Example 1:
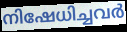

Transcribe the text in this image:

നിഷേധിച്ചവർ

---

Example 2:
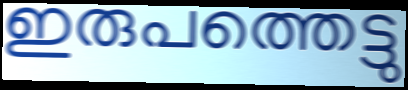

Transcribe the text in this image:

ഇരുപത്തെട്ടു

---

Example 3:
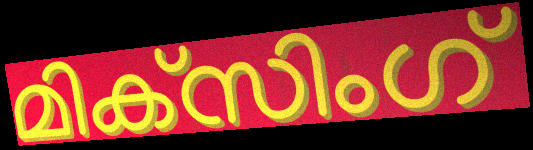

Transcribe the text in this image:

മിക്‌സിംഗ്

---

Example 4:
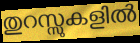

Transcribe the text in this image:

തുറസ്സുകളിൽ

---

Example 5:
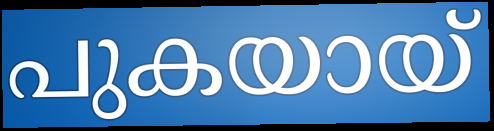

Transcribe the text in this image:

പുകയായ്